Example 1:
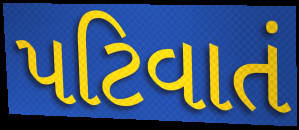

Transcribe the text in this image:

પટિવાતં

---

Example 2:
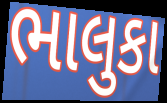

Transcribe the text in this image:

ભાલુકા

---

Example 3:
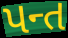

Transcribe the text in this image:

પન્ત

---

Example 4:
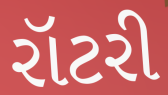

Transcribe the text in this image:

રૉટરી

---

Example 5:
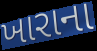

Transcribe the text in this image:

ખારાના